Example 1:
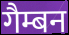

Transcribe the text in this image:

गैम्बन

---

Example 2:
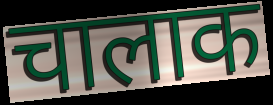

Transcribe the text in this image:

चालाक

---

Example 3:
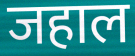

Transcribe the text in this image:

जहाल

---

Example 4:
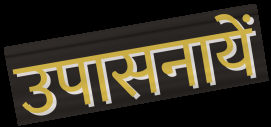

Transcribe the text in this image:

उपासनायें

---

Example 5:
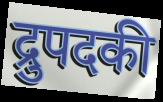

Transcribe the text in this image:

द्रुपदकी